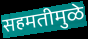
सहमतीमुळे